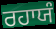
ਰਹਾਯੰ